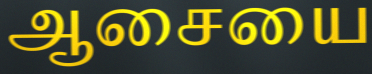
ஆசையை